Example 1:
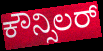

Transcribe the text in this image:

ಕೌನ್ಸಿಲರ್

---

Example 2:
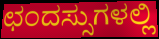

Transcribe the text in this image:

ಛಂದಸ್ಸುಗಳಲ್ಲಿ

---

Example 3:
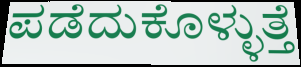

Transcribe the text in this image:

ಪಡೆದುಕೊಳ್ಳುತ್ತೆ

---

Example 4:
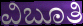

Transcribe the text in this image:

ವಿಬೂತಿ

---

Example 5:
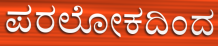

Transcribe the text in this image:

ಪರಲೋಕದಿಂದ